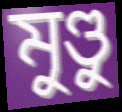
মুণ্ডু